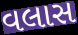
વલાસ